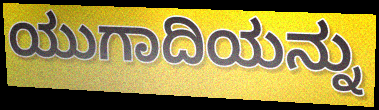
ಯುಗಾದಿಯನ್ನು